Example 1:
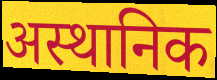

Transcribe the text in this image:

अस्थानिक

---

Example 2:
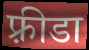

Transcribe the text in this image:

फ़्रीडा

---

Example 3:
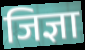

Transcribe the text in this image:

जिज्ञा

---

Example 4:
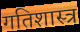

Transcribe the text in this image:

गतिशास्त्र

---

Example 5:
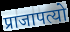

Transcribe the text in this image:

प्राजापत्यो